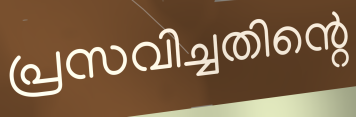
പ്രസവിച്ചതിന്റെ